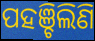
ପହଞ୍ଚିଲିଣି